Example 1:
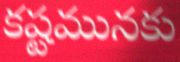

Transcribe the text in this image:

కష్టమునకు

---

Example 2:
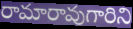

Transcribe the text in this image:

రామారావుగారిని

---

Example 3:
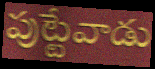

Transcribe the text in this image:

పుట్టేవాడు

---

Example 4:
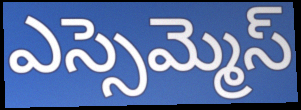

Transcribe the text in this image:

ఎస్సెమ్మెస్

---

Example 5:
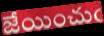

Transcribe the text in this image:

జేయించుఁ